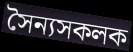
সৈন্যসকলক